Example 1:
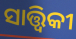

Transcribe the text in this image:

ସାତ୍ତ୍ୱିକୀ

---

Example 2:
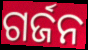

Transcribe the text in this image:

ଗର୍ଜନ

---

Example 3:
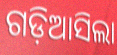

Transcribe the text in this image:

ଗଡ଼ିଆସିଲା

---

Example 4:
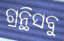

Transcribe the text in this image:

ଗ୍ରନ୍ଥିସବୁ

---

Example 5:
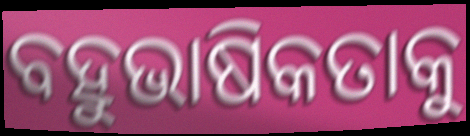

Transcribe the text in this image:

ବହୁଭାଷିକତାକୁ